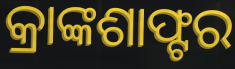
କ୍ରାଙ୍କଶାଫ୍ଟର